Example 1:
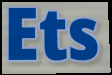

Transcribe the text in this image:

Ets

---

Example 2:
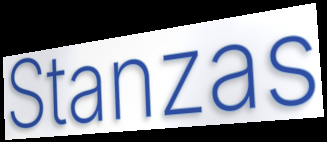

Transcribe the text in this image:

Stanzas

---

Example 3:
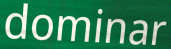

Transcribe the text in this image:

dominar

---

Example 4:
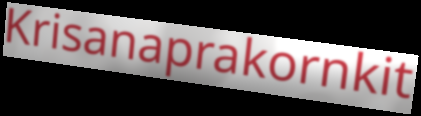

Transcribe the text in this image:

Krisanaprakornkit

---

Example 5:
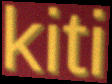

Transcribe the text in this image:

kiti